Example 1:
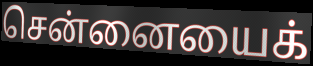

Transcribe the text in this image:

சென்னையைக்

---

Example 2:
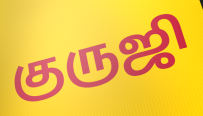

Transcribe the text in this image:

குருஜி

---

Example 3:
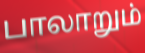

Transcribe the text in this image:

பாலாறும்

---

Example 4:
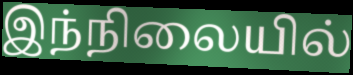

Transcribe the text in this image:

இந்நிலையில்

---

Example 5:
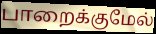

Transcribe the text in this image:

பாறைக்குமேல்